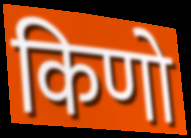
किणो